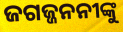
ଜଗଜ୍ଜନନୀଙ୍କୁ